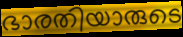
ഭാരതിയാരുടെ